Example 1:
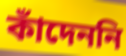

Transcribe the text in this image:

কাঁদেননি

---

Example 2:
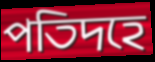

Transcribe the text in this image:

পতিদহে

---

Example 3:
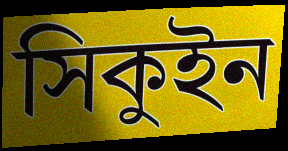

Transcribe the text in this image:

সিকুইন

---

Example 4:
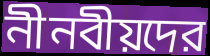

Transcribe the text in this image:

নীনবীয়দের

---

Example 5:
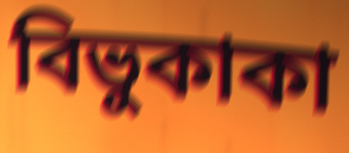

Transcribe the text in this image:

বিভুকাকা